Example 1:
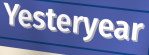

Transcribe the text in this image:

Yesteryear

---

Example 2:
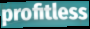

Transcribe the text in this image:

profitless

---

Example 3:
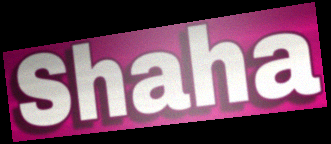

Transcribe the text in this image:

Shaha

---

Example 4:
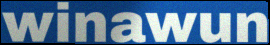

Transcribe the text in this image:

winawun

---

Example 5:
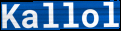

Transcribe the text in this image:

Kallol